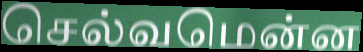
செல்வமென்ன